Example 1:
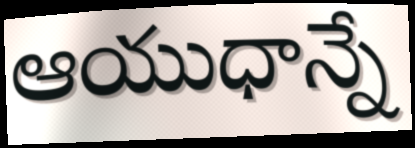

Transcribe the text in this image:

ఆయుధాన్నే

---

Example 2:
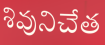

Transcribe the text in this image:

శివునిచేత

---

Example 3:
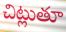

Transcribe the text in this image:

చిట్లుతూ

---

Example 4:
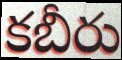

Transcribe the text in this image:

కబీరు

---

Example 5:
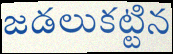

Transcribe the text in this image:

జడలుకట్టిన